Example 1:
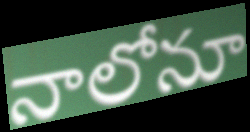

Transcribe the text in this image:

నాలోనూ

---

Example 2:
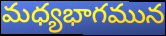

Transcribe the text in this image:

మధ్యభాగమున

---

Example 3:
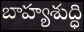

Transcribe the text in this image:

బాహ్యశుద్ధి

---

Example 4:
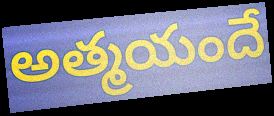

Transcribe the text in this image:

అత్మయందే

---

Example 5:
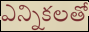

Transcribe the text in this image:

ఎన్నికలతో